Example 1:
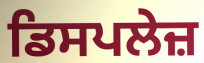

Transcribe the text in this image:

ਡਿਸਪਲੇਜ਼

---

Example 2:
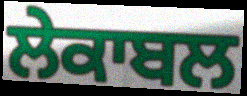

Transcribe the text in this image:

ਲੇਕਾਬਲ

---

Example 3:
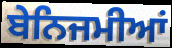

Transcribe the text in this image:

ਬੇਨਿਜਮੀਆਂ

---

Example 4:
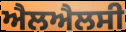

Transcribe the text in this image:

ਐਲਐਲਸੀ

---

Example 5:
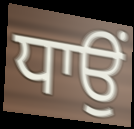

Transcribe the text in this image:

ਧਾਉਂ